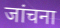
जांचना